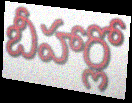
బీహార్లో